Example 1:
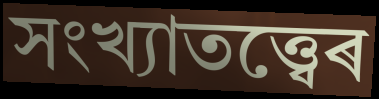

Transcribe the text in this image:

সংখ্যাতত্ত্বেৰ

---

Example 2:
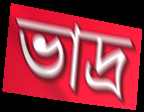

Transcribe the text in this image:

ভাদ্ৰ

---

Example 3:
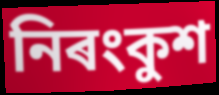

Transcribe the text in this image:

নিৰংকুশ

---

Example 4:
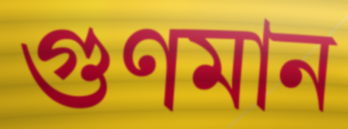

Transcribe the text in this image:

গুণমান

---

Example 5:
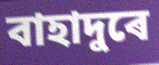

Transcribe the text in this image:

বাহাদুৰে